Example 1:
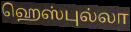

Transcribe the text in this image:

ஹெஸ்புல்லா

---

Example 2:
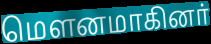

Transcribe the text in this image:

மௌனமாகினர்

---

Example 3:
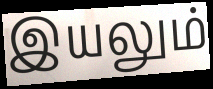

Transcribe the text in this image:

இயலும்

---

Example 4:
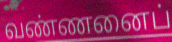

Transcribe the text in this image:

வண்ணனைப்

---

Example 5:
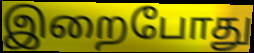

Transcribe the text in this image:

இறைபோது